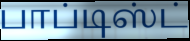
பாப்டிஸ்ட்